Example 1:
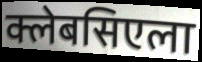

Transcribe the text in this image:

क्लेबसिएला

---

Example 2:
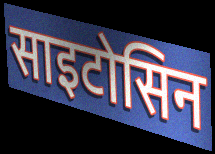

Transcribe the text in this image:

साइटोसिन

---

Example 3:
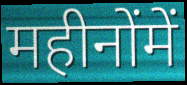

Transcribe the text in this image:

महीनोंमें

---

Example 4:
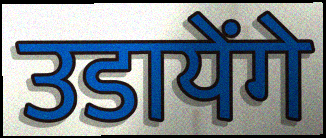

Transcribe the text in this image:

उडायेंगे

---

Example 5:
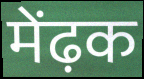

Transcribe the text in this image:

मेंढ़क